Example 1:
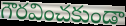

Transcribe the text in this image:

గౌరవించకుండా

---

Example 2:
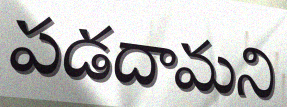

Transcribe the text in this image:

పడదామని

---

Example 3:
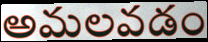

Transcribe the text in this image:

అమలవడం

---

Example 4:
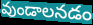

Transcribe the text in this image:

వుండాలనడం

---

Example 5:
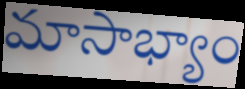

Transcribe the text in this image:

మాసాభ్యాం